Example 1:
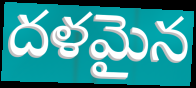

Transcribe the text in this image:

దళమైన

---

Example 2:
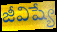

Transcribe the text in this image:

జీవిష్యే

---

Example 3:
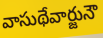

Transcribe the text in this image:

వాసుథేవార్జునౌ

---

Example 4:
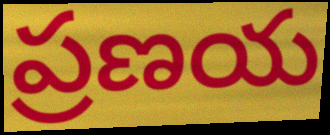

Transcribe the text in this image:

ప్రణయ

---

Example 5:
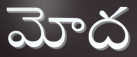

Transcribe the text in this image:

మోద